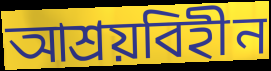
আশ্রয়বিহীন